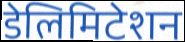
डेलिमिटेशन